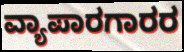
ವ್ಯಾಪಾರಗಾರರ